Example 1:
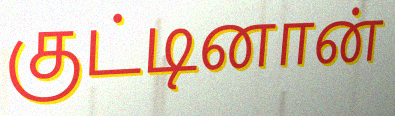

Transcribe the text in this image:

குட்டினான்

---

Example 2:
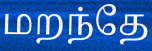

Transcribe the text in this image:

மறந்தே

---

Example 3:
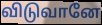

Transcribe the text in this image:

விடுவானே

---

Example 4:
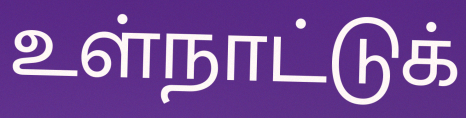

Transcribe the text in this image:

உள்நாட்டுக்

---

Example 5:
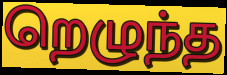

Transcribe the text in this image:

றெழுந்த